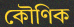
কৌণিক